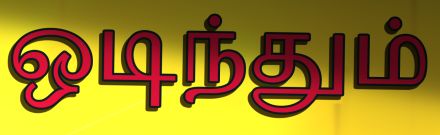
ஒடிந்தும்